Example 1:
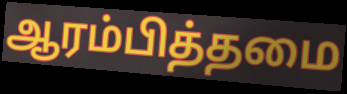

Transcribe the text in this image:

ஆரம்பித்தமை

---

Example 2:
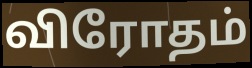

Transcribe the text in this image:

விரோதம்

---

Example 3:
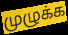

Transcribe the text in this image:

முழுக்க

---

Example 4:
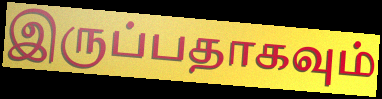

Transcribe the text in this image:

இருப்பதாகவும்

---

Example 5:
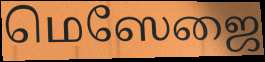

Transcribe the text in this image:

மெஸேஜை